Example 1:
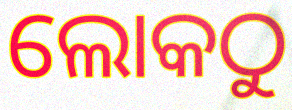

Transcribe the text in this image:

ଲୋକଠୁ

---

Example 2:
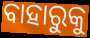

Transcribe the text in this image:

ବାହାରୁକୁ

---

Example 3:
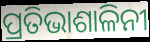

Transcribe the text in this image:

ପ୍ରତିଭାଶାଳିନୀ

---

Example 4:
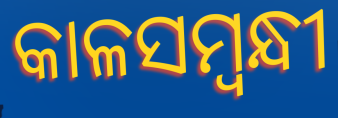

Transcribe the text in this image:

କାଳସମ୍ଵନ୍ଧୀ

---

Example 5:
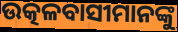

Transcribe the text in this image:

ଉତ୍କଳବାସୀମାନଙ୍କୁ